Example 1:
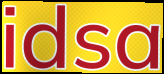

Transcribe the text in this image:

idsa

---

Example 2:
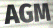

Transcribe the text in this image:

AGM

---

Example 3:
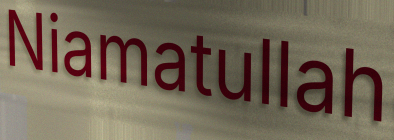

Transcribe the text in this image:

Niamatullah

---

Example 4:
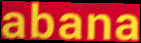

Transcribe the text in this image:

abana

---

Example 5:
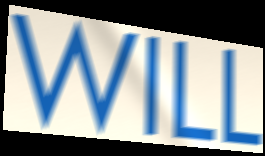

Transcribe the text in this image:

WILL